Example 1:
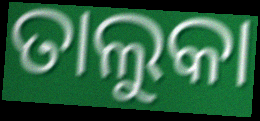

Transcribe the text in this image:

ତାଲୁକା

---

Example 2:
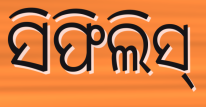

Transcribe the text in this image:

ସିଫିଲିସ୍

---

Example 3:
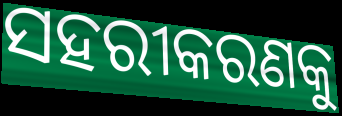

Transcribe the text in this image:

ସହରୀକରଣକୁ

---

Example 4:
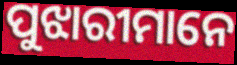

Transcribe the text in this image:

ପୁଝାରୀମାନେ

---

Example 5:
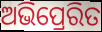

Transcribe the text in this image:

ଅଭିପ୍ରେରିତ